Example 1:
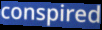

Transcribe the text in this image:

conspired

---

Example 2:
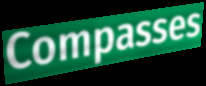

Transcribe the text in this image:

Compasses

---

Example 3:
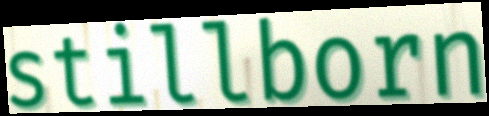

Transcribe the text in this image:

stillborn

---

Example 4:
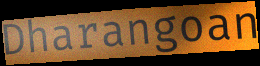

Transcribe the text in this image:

Dharangoan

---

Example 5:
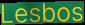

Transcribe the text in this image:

Lesbos